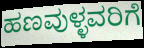
ಹಣವುಳ್ಳವರಿಗೆ